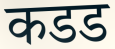
कडड